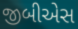
જીબીએસ